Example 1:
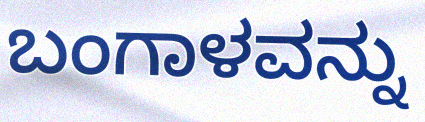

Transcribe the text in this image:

ಬಂಗಾಳವನ್ನು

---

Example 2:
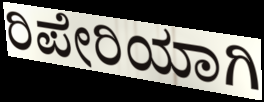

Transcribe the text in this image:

ರಿಪೇರಿಯಾಗಿ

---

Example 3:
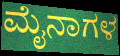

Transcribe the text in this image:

ಮೈನಾಗಳ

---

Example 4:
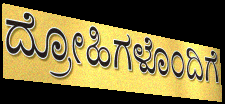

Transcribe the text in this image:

ದ್ರೋಹಿಗಳೊಂದಿಗೆ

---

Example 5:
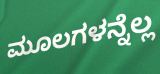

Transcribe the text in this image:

ಮೂಲಗಳನ್ನೆಲ್ಲ